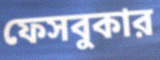
ফেসবুকার